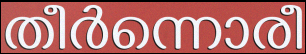
തീർന്നൊരീ